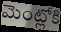
మెంట్లోకి